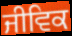
ਜੀਵਿਕ